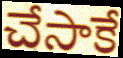
చేసాకే